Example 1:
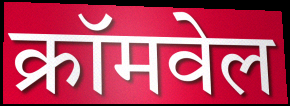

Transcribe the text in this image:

क्रॉमवेल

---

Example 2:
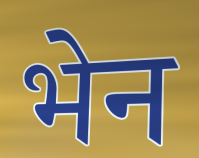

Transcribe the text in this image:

भेन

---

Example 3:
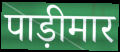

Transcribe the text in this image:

पाड़ीमार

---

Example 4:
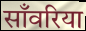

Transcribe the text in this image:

साँवरिया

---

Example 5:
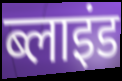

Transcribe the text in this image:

ब्लाइंड